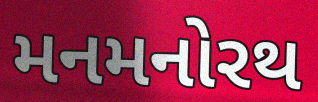
મનમનોરથ